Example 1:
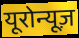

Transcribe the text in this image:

यूरोन्यूज़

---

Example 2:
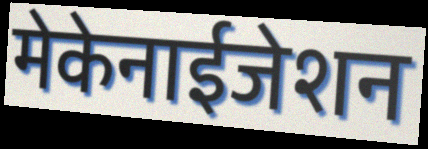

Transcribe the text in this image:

मेकेनाईजेशन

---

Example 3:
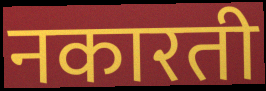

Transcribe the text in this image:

नकारती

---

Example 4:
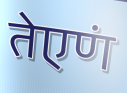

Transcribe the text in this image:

तेएणं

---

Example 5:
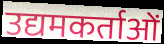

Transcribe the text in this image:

उद्यमकर्ताओं